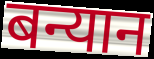
बन्यान